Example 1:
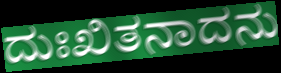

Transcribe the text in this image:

ದುಃಖಿತನಾದನು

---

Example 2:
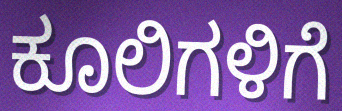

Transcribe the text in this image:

ಕೂಲಿಗಳಿಗೆ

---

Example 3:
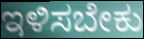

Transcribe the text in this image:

ಇಳಿಸಬೇಕು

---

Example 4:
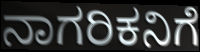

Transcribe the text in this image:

ನಾಗರಿಕನಿಗೆ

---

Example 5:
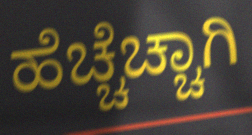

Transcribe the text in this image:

ಹೆಚ್ಚೆಚ್ಚಾಗಿ